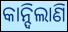
କାନ୍ଦିଲାଣି